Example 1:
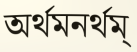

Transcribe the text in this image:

অর্থমনর্থম্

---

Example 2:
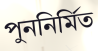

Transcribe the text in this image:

পুননির্মিত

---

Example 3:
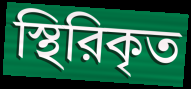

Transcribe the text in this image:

স্থিরিকৃত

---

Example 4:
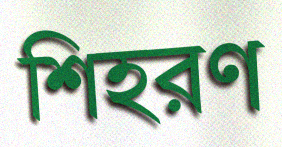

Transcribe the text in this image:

শিহরণ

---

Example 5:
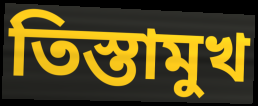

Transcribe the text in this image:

তিস্তামুখ